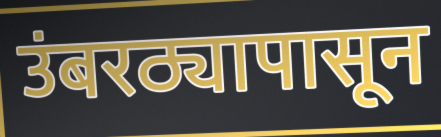
उंबरठ्यापासून